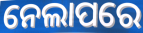
ନେଲାପରେ